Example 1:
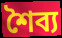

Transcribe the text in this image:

শৈব্য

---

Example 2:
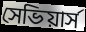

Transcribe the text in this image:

সেভিয়ার্স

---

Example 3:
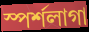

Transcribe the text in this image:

স্পর্শলাগা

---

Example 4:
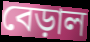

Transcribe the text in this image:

বেড়াল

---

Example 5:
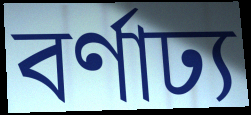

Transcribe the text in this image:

বর্ণাঢ্য